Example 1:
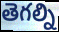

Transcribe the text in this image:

తెగల్ని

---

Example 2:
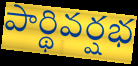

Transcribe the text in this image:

పార్థివర్షభ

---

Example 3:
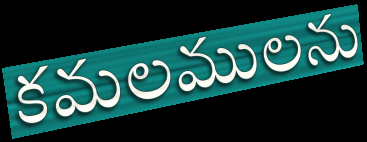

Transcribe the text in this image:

కమలములను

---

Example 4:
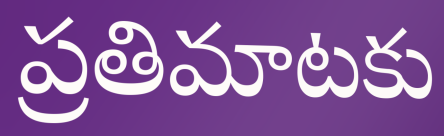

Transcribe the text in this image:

ప్రతిమాటకు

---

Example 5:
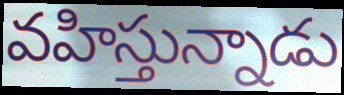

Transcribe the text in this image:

వహిస్తున్నాడు